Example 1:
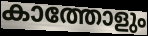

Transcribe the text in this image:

കാത്തോളും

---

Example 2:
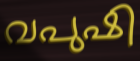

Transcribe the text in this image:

വപുഷി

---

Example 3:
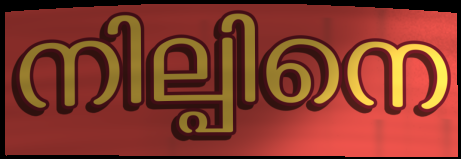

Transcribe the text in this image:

നില്പിനെ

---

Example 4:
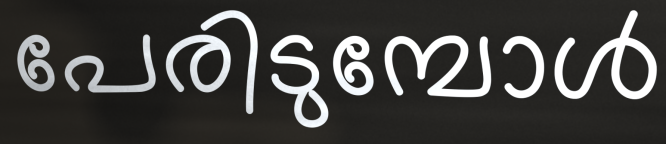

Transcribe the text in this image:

പേരിടുമ്പോൾ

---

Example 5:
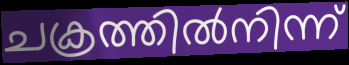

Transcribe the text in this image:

ചക്രത്തിൽനിന്ന്